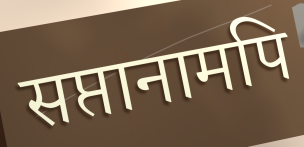
सप्तानामपि